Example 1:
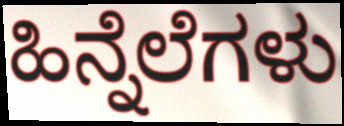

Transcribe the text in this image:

ಹಿನ್ನೆಲೆಗಳು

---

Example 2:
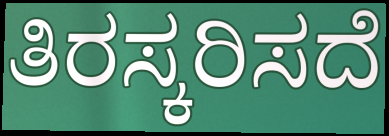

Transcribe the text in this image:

ತಿರಸ್ಕರಿಸದೆ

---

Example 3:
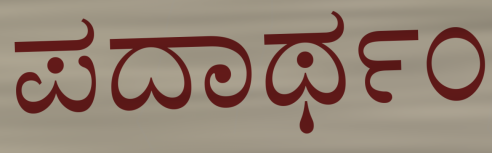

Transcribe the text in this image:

ಪದಾರ್ಥಂ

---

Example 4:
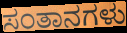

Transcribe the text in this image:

ಸಂತಾನಗಳು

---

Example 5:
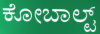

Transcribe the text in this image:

ಕೋಬಾಲ್ಟ್